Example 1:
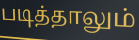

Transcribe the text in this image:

படித்தாலும்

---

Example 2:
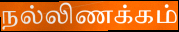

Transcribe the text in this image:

நல்லிணக்கம்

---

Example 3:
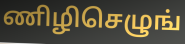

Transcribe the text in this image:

ணிழிசெழுங்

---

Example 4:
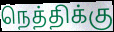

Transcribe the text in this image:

நெத்திக்கு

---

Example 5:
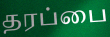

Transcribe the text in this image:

தரப்பை